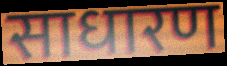
साधारण